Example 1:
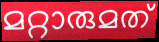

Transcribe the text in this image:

മറ്റാരുമത്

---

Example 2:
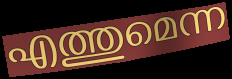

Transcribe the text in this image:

എത്തുമെന്ന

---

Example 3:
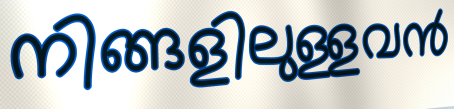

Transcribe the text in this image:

നിങ്ങളിലുള്ളവൻ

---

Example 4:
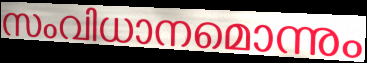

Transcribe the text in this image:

സംവിധാനമൊന്നും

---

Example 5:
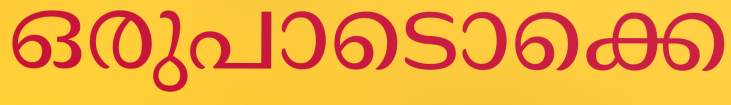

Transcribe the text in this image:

ഒരുപാടൊക്കെ